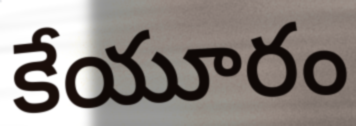
కేయూరం